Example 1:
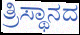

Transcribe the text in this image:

ತ್ರಿಸ್ಥಾನದ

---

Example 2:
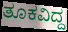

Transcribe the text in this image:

ತೂಕವಿದ್ದ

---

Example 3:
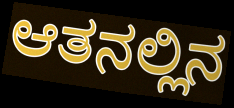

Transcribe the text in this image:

ಆತನಲ್ಲಿನ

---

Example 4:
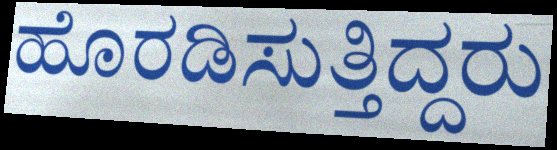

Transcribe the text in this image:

ಹೊರಡಿಸುತ್ತಿದ್ದರು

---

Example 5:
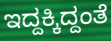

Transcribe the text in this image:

ಇದ್ದಕ್ಕಿದ್ದಂತೆ